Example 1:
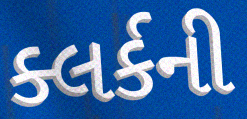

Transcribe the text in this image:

ક્લર્કની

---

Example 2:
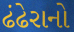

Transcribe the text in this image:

ઢંઢેરાનો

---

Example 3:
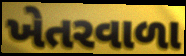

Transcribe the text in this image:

ખેતરવાળા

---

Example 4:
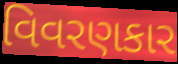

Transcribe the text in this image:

વિવરણકાર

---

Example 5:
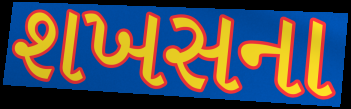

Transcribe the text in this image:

શખસના